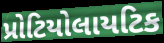
પ્રોટિયોલાયટિક